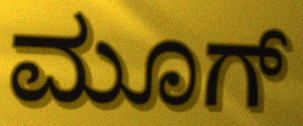
ಮೂಗ್